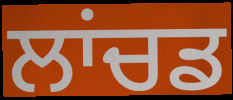
ਲਾਂਚਡ